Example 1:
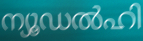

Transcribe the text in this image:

ന്യൂഡൽഹി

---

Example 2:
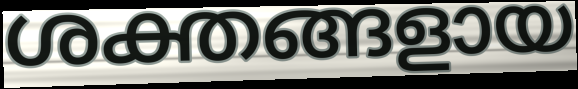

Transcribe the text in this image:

ശക്തങ്ങളായ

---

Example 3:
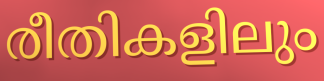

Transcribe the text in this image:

രീതികളിലും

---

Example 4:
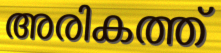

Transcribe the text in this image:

അരികത്ത്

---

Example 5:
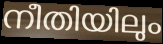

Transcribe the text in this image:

നീതിയിലും